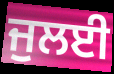
ਜੁਲਈ